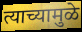
त्याच्यामुळे